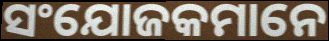
ସଂଯୋଜକମାନେ